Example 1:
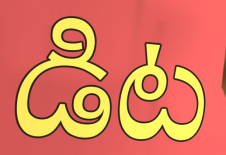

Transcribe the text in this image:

డిట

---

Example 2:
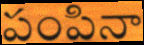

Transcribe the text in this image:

పంపినా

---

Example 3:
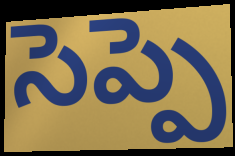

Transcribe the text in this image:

సెప్పె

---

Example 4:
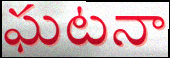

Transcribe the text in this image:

ఘటనా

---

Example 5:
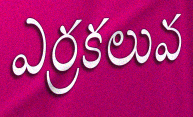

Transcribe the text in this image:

ఎర్రకలువ